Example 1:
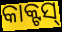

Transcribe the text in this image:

କାକ୍ଟସ୍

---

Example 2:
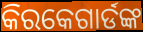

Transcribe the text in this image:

କିରକେଗାର୍ଡଙ୍କ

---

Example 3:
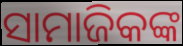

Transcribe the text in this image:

ସାମାଜିକଙ୍କ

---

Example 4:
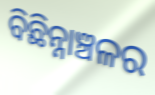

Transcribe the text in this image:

ବିଛିନ୍ନାଞ୍ଚଳର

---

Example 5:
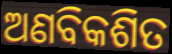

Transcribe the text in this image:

ଅଣବିକଶିତ